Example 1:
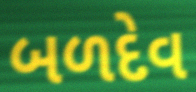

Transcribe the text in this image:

બળદેવ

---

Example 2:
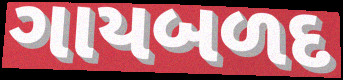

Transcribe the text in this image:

ગાયબળદ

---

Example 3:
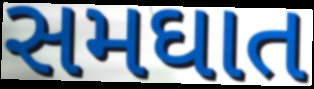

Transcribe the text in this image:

સમઘાત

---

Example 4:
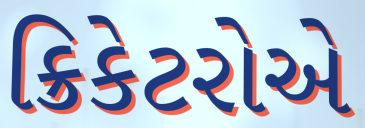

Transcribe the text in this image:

ક્રિકેટરોએ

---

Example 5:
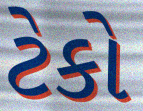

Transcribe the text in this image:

ટેકો